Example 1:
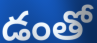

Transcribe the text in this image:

డంతో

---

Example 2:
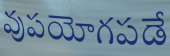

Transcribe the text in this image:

వుపయోగపడే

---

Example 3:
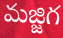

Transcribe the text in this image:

మజ్జిగ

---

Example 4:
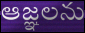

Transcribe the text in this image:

ఆజ్ఞలను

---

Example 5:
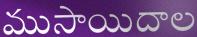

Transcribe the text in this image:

ముసాయిదాల